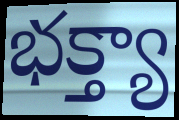
భక్త్యా